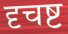
दृचष्ट